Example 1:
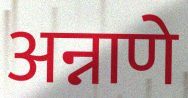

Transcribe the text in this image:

अन्नाणे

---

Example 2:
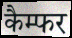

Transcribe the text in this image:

कैम्फर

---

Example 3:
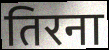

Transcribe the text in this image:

तिरना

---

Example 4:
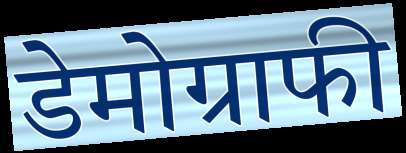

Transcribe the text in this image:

डेमोग्राफी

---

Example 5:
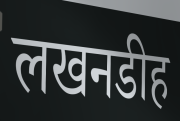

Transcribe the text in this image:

लखनडीह